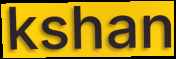
kshan